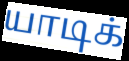
யாடிக்